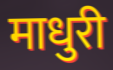
माधुरी